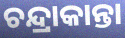
ଚନ୍ଦ୍ରାକାନ୍ତା